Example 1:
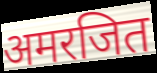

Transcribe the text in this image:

अमरजित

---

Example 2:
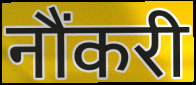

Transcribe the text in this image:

नौंकरी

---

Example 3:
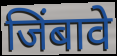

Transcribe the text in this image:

जिंबावे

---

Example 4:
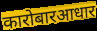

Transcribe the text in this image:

कारोबारआधार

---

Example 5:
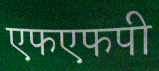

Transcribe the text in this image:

एफएफपी